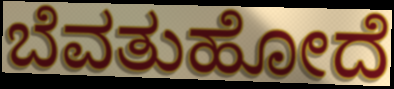
ಬೆವತುಹೋದೆ